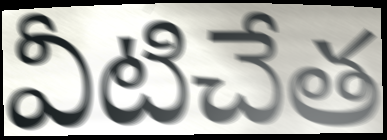
వీటిచేత